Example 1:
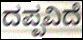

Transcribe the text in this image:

ದಪ್ಪವಿದೆ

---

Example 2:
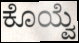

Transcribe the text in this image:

ಕೊಯ್ವೆ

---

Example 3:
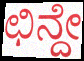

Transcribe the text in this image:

ಛಿನ್ದೇ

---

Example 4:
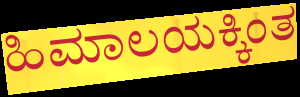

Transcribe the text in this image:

ಹಿಮಾಲಯಕ್ಕಿಂತ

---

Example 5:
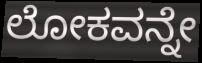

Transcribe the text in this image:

ಲೋಕವನ್ನೇ